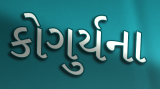
કોગુર્યના